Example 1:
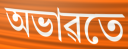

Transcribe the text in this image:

অভাৱতে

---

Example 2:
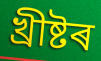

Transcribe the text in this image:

খ্ৰীষ্টৰ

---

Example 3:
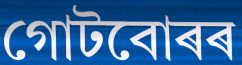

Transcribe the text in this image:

গোটবোৰৰ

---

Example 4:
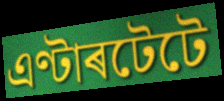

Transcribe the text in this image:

এণ্টাৰটেটে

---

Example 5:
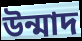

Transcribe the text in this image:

উন্মাদ